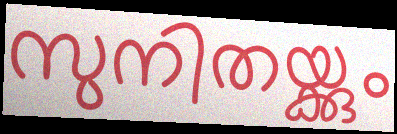
സുനിതയ്ക്കും